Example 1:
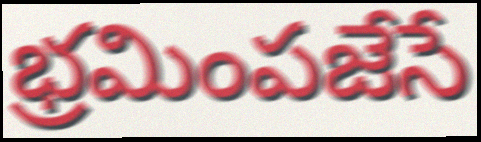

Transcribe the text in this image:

భ్రమింపజేసే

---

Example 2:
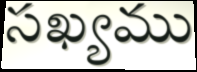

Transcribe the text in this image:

సఖ్యము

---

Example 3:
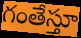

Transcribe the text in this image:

గంతేస్తూ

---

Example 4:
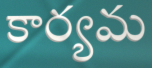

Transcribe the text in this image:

కార్యమ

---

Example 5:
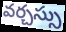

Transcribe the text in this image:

వర్చస్సు